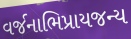
વર્જનાભિપ્રાયજન્ય